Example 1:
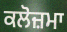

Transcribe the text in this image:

ਕਲੋਜ਼ਮਾ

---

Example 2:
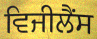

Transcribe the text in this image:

ਵਿਜੀਲੈਂਸ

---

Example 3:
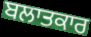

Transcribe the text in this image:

ਬਲਾਤਕਾਰ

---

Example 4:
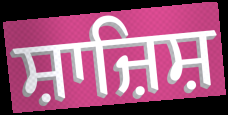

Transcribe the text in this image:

ਸ਼ਾਜ਼ਿਸ਼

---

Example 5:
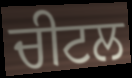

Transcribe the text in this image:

ਚੀਟਲ